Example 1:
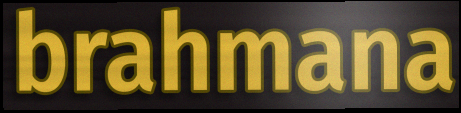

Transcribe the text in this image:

brahmana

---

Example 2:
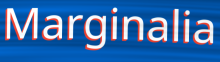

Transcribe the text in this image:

Marginalia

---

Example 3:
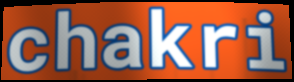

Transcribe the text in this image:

chakri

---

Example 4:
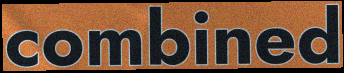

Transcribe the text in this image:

combined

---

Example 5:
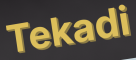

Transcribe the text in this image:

Tekadi